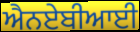
ਐਨਏਬੀਆਈ